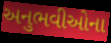
અનુભવીઓના